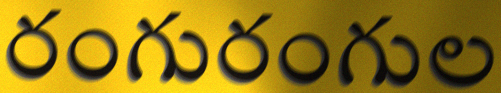
రంగురంగుల